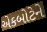
એકબોટેને